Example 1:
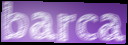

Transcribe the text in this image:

barca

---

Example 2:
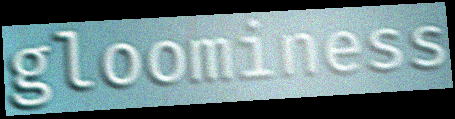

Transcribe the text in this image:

gloominess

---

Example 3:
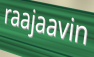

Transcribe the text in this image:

raajaavin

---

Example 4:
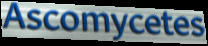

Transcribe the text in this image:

Ascomycetes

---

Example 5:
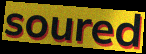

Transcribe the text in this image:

soured